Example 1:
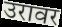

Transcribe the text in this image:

उरावर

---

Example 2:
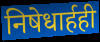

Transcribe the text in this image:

निषेधार्हही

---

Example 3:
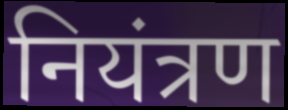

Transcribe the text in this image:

नियंत्रण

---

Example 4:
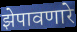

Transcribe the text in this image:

झेपावणारे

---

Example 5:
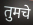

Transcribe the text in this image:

तुमचे